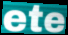
ete